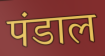
पंडाल